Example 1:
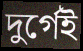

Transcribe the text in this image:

দুর্গেই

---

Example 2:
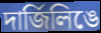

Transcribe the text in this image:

দার্জিলিঙে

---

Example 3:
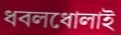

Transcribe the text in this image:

ধবলধোলাই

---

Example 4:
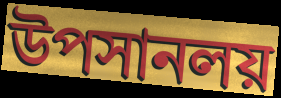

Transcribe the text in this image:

উপসানলয়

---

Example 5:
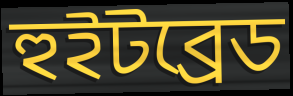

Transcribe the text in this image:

হুইটব্রেড